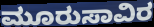
ಮೂರುಸಾವಿರ